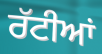
ਰੱਟੀਆਂ